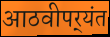
आठवीपर्यंत